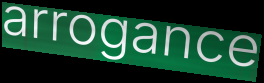
arrogance